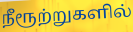
நீரூற்றுகளில்